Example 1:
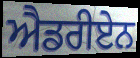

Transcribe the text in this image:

ਐਡਰੀਏਨ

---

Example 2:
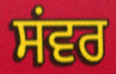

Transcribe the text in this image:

ਸਂਵਰ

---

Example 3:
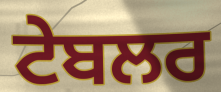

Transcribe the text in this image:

ਟੇਬਲਰ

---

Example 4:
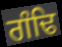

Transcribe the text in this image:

ਗੰਢਿ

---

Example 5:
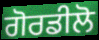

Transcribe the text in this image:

ਗੋਰਡੀਲੋ